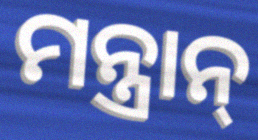
ମନ୍ତ୍ରାନ୍